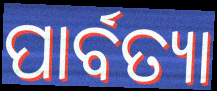
ପାର୍ବତ୍ୟା